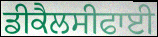
ਡੀਕੈਲਸੀਫਾਈ